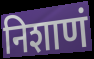
निशाणं